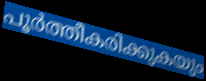
പൂർത്തീകരിക്കുകയും